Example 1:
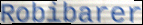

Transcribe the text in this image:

Robibarer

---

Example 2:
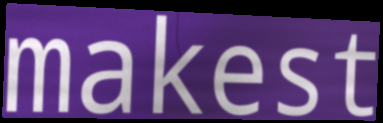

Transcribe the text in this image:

makest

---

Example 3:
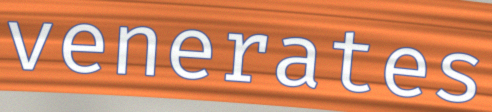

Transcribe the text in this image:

venerates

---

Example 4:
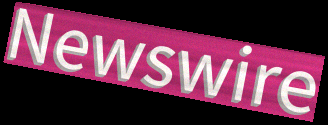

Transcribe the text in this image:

Newswire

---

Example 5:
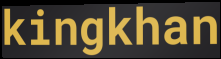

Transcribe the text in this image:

kingkhan